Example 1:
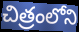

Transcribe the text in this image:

చిత్రంలోని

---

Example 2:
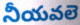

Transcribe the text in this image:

నీయవలె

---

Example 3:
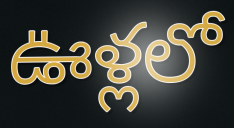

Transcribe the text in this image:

ఊళ్లలో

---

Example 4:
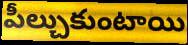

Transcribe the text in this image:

పీల్చుకుంటాయి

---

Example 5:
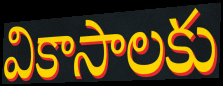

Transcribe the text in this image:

వికాసాలకు